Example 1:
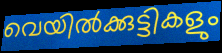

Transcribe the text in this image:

വെയിൽക്കുട്ടികളും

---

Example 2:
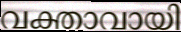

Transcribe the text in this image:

വക്താവായി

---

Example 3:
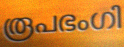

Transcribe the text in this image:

രൂപഭംഗി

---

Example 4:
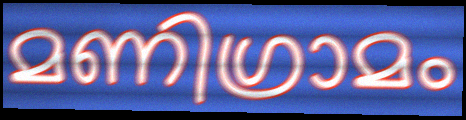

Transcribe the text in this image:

മണിഗ്രാമം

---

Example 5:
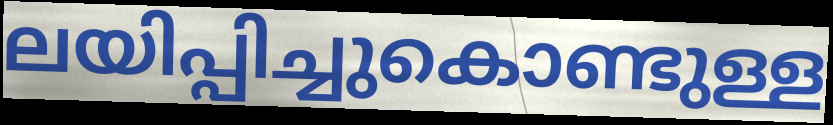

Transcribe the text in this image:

ലയിപ്പിച്ചുകൊണ്ടുള്ള